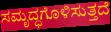
ಸಮೃದ್ಧಗೊಳಿಸುತ್ತದೆ